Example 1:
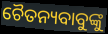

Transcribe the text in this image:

ଚୈତନ୍ୟବାବୁଙ୍କୁ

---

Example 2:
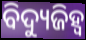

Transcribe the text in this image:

ବିଦ୍ୟୁଜିହ୍ୱ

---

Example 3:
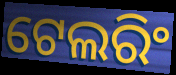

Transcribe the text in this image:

ଟେଲରିଂ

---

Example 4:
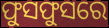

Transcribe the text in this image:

ଫୁସଫୁସରେ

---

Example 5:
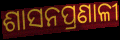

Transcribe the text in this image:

ଶାସନପ୍ରଣାଳୀ